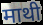
माथी